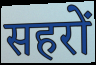
सहरों